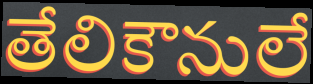
తేలికౌనులే